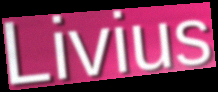
Livius